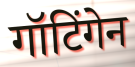
गॉटिंगेन